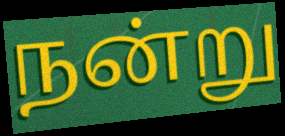
நன்று